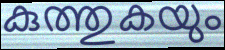
കുത്തുകയും